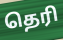
தெரி